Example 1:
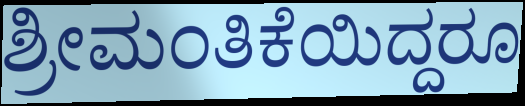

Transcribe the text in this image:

ಶ್ರೀಮಂತಿಕೆಯಿದ್ದರೂ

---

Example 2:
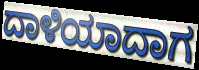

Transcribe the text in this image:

ದಾಳಿಯಾದಾಗ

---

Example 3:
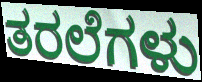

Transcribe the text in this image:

ತರಲೆಗಳು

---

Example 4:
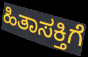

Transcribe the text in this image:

ಹಿತಾಸಕ್ತಿಗೆ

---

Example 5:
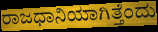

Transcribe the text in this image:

ರಾಜಧಾನಿಯಾಗಿತ್ತೆಂದು